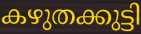
കഴുതക്കുട്ടി